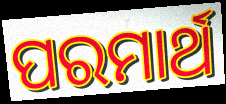
ପରମାର୍ଥ